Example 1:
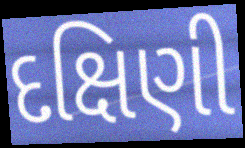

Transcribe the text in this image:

દક્ષિણી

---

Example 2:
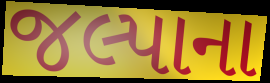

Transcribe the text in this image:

જલ્પાના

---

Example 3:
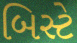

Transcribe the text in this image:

બિસ્ટે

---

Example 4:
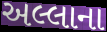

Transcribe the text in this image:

અલ્લાના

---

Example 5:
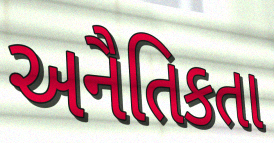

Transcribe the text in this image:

અનૈતિકતા